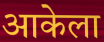
आकेला